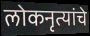
लोकनृत्यांचे